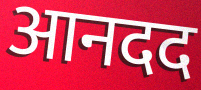
आनदद